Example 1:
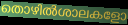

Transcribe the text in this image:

തൊഴിൽശാലകളോ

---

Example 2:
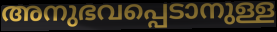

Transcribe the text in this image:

അനുഭവപ്പെടാനുള്ള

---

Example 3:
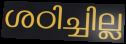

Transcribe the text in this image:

ശഠിച്ചില്ല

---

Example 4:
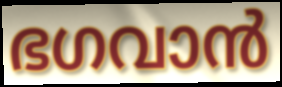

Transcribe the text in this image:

ഭഗവാൻ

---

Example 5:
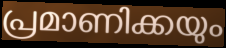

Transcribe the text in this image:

പ്രമാണിക്കയും